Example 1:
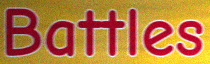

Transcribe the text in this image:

Battles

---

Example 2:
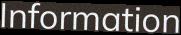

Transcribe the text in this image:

Information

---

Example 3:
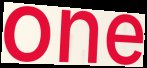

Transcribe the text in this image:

one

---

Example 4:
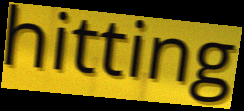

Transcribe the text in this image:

hitting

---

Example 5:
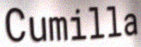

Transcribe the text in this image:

Cumilla